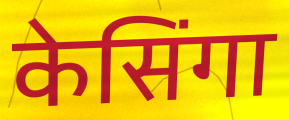
केसिंगा